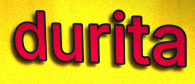
durita